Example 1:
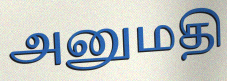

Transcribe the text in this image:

அனுமதி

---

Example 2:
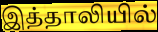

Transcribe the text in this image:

இத்தாலியில்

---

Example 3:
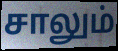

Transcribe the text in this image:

சாலும்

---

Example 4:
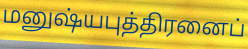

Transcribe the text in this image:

மனுஷ்யபுத்திரனைப்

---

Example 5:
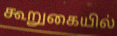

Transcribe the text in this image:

கூறுகையில்